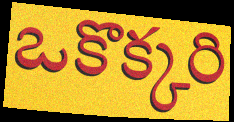
ఒకొక్కరి